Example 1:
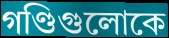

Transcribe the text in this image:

গণ্ডিগুলোকে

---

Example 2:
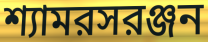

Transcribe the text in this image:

শ্যামরসরঞ্জন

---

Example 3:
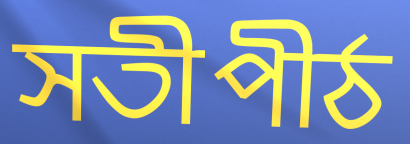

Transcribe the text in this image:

সতীপীঠ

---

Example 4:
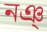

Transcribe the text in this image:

নঞ্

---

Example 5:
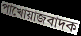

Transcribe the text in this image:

পাখোয়াজবাদক